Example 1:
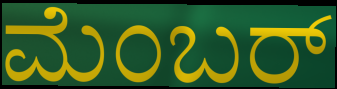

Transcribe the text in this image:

ಮೆಂಬರ್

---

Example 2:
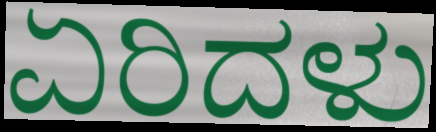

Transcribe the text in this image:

ಏರಿದಳು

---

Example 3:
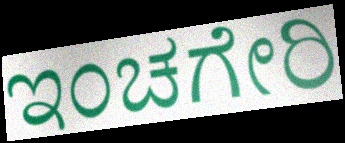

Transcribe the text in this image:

ಇಂಚಗೇರಿ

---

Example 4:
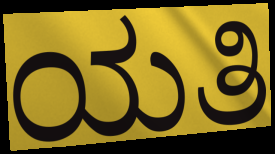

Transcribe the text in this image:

ಯತಿ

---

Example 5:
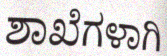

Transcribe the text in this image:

ಶಾಖೆಗಳಾಗಿ